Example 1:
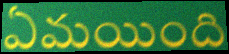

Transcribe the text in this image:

ఏమయింది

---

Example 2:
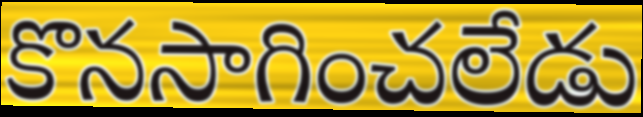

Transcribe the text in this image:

కొనసాగించలేడు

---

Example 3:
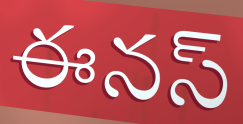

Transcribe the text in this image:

ఈనస్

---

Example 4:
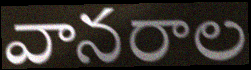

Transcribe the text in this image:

వానరాల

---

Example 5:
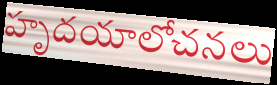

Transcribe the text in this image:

హృదయాలోచనలు